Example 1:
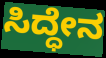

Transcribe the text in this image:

ಸಿದ್ಧೇನ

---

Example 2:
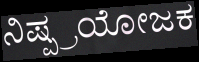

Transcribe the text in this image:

ನಿಷ್ಪ್ರಯೋಜಕ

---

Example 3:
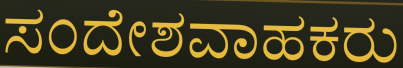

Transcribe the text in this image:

ಸಂದೇಶವಾಹಕರು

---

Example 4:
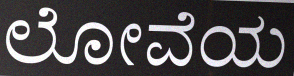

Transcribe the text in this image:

ಲೋವೆಯ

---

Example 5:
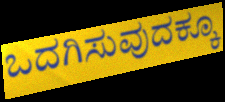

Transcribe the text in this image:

ಒದಗಿಸುವುದಕ್ಕೂ